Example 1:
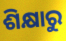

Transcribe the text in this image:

ଶିକ୍ଷାରୁ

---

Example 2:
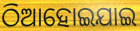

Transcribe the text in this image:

ଠିଆହୋଇଯାଇ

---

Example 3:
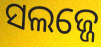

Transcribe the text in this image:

ସଲଜ୍ଜେ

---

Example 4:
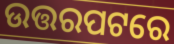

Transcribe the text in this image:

ଉତ୍ତରପଟରେ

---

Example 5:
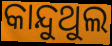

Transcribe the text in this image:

କାନ୍ଦୁଥୁଲ